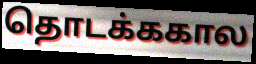
தொடக்ககால